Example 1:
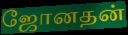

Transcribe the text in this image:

ஜோனதன்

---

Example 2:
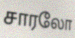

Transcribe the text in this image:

சாரலோ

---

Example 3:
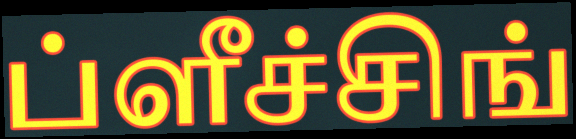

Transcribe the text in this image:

ப்ளீச்சிங்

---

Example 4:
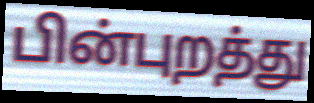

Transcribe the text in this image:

பின்புறத்து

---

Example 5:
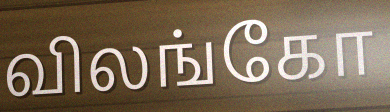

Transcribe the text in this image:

விலங்கோ